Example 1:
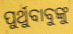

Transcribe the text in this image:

ପୁର୍ଥୁବାବୁଙ୍କୁ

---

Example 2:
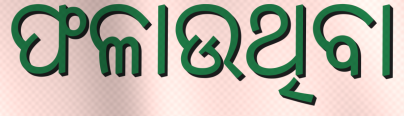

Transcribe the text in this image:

ଫଳାଉଥିବା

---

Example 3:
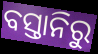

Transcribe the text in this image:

ବସ୍ତାନିରୁ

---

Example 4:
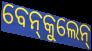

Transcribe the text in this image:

ବେନ୍‍କୁଲେନ୍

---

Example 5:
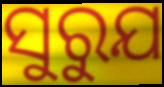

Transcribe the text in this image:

ସୁରୁଯ